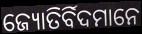
ଜ୍ୟୋତିର୍ବିଦମାନେ